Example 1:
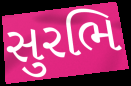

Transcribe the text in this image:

સુરભિ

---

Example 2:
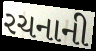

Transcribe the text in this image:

રચનાની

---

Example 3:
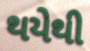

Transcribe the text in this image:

થયેથી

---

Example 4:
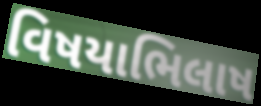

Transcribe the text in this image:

વિષયાભિલાષ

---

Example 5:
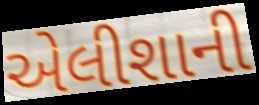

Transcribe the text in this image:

એલીશાની